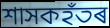
শাসকহঁতৰ